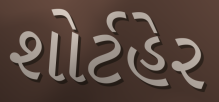
શોર્ટહેર